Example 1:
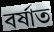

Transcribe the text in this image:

বৰ্ষাত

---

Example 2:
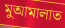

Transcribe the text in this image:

মুআমালাত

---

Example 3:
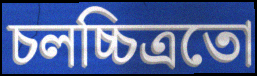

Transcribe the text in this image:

চলচ্চিত্ৰতো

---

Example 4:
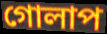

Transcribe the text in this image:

গোলাপ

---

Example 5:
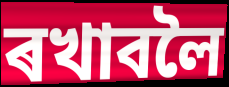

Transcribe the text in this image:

ৰখাবলৈ